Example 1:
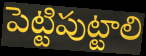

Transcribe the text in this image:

పెట్టిపుట్టాలి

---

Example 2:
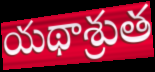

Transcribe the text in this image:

యథాశ్రుత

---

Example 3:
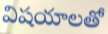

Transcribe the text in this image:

విషయాలతో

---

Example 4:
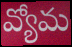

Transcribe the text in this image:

వ్యోమ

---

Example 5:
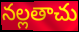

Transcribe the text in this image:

నల్లతాచు